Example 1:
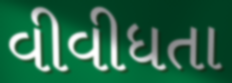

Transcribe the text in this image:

વીવીધતા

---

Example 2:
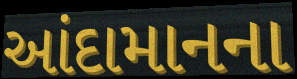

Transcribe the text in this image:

આંદામાનના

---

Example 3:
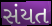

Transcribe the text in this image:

સંયત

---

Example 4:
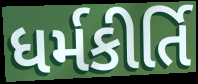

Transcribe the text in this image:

ધર્મકીર્તિ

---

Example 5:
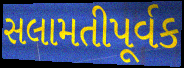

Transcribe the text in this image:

સલામતીપૂર્વક